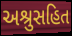
અશ્રુસહિત